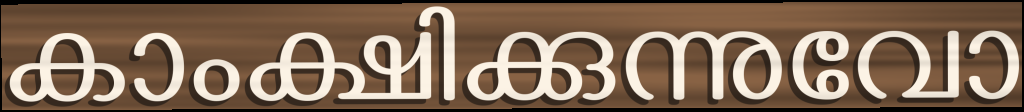
കാംക്ഷിക്കുന്നുവോ